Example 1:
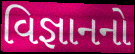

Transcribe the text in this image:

વિજ્ઞાનનો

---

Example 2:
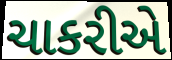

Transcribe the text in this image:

ચાકરીએ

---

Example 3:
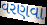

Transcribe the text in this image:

વરણવા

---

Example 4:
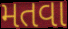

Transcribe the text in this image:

મતવા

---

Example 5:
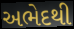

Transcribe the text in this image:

અભેદથી